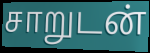
சாறுடன்